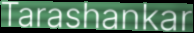
Tarashankar